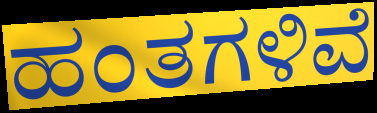
ಹಂತಗಳಿವೆ